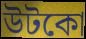
উটকো